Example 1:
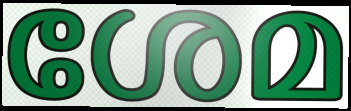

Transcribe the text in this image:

ശേമ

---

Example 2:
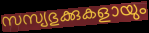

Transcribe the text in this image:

സസ്യഭുക്കുകളായും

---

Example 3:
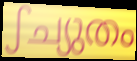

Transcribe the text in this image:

ഽച്യുതം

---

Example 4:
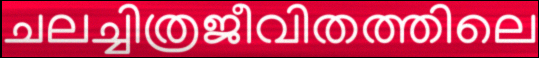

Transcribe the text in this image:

ചലച്ചിത്രജീവിതത്തിലെ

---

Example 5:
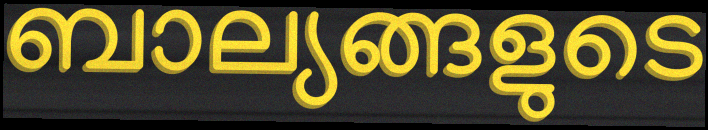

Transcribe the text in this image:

ബാല്യങ്ങളുടെ